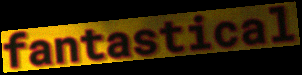
fantastical